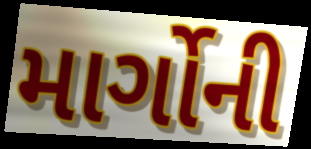
માર્ગોની